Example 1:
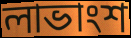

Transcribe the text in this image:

লাভাংশ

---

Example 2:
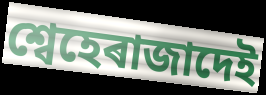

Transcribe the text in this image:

শ্বেহেৰাজাদেই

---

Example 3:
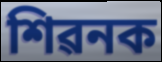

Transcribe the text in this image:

শিৱনক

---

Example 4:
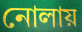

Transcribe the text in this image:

নোলায়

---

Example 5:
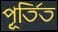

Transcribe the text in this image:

পূৰ্তিত